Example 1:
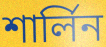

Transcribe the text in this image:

শার্লিন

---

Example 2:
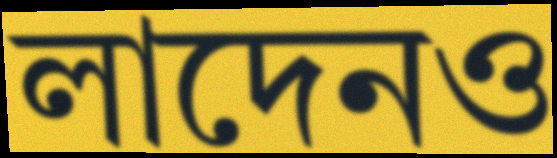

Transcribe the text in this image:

লাদেনও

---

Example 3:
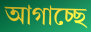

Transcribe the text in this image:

আগাচ্ছে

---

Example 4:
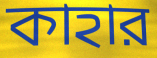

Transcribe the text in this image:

কাহার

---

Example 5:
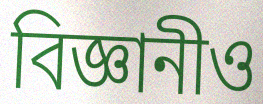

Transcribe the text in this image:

বিজ্ঞানীও